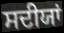
ਸਦੀਯਾਂ